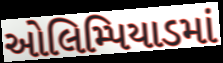
ઓલિમ્પિયાડમાં